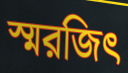
স্মরজিৎ